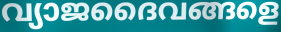
വ്യാജദൈവങ്ങളെ